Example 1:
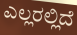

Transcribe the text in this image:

ಎಲ್ಲರಲ್ಲಿದೆ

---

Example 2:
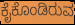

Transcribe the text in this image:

ಕೈಕೊಂಡಿರುವ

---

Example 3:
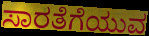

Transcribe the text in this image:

ಸಾರತೆಗೆಯುವ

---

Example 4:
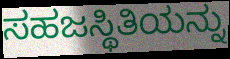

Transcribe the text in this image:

ಸಹಜಸ್ಥಿತಿಯನ್ನು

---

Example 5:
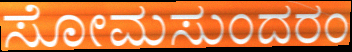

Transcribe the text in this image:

ಸೋಮಸುಂದರಂ